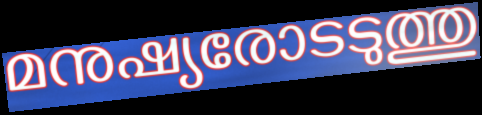
മനുഷ്യരോടടുത്തു